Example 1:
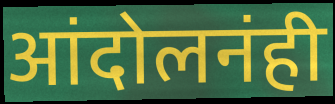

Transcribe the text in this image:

आंदोलनंही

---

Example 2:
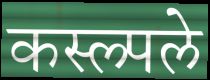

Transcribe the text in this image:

कस्ल्पले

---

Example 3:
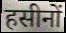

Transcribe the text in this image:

हसीनों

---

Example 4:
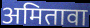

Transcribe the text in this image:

अमितावा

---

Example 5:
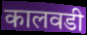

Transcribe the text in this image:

कालवडी